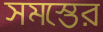
সমস্তের